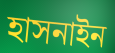
হাসনাইন